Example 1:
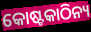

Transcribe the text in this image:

କୋଷ୍ଟକାଠିନ୍ୟ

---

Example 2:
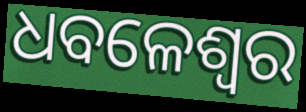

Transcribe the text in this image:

ଧବଳେଶ୍ଵର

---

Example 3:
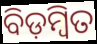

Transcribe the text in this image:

ବିଡ଼ମ୍ବିତ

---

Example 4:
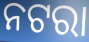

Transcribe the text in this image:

ନଟରା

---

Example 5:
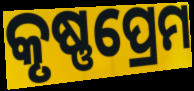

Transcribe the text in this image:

କୃଷ୍ଣପ୍ରେମ